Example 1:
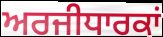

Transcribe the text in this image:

ਅਰਜੀਧਾਰਕਾਂ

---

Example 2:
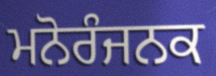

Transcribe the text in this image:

ਮਨੋਰੰਜਨਕ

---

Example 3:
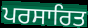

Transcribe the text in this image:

ਪਰਸਾਰਿਤ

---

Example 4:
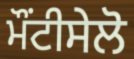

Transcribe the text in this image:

ਮੌਂਟੀਸੇਲੋ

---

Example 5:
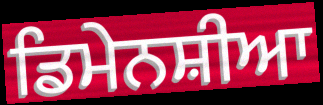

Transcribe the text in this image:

ਡਿਮੇਨਸ਼ੀਆ